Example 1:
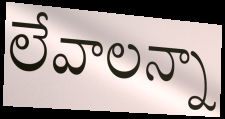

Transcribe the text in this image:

లేవాలన్నా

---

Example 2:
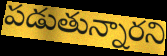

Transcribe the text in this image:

పడుతున్నారని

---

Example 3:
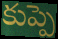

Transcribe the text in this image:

కుప్పె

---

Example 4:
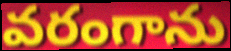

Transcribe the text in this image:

వరంగాను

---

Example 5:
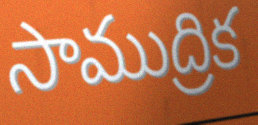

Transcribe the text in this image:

సాముద్రిక